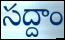
సద్దాం